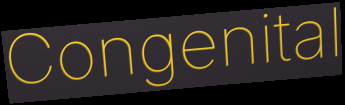
Congenital